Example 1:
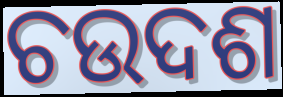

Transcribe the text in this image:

ଚଉଦଶ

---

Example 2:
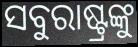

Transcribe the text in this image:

ସବୁରାଷ୍ଟ୍ରଙ୍କୁ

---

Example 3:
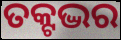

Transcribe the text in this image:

ତକ୍ଟଦ୍ଭର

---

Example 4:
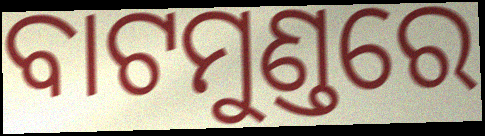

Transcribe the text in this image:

ବାଟମୁଣ୍ଡରେ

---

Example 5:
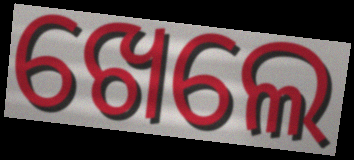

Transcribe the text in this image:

ଖେଲେ